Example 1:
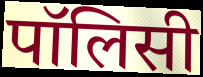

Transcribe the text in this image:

पॉलिसी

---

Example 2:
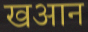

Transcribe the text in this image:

खआन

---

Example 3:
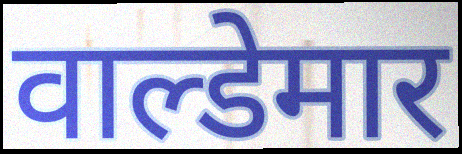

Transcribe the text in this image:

वाल्डेमार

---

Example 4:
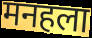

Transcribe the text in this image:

मनहला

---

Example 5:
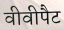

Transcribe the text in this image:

वीवीपैट